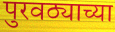
पुरवठ्याच्या